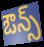
ఔన్స్